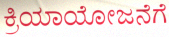
ಕ್ರಿಯಾಯೋಜನೆಗೆ